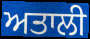
ਅਤਾਲੀ